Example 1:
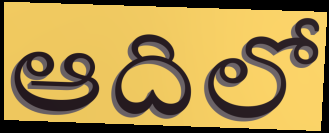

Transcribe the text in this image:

ఆదిలో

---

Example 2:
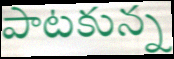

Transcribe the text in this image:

పాటకున్న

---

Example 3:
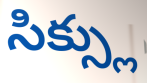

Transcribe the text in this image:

సిక్స్లు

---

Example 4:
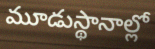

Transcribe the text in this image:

మూడుస్థానాల్లో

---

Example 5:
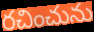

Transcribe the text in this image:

రచించును